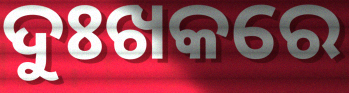
ଦୁଃଖକରେ